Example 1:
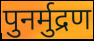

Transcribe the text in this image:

पुनर्मुद्रण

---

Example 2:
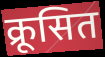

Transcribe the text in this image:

क्रूसित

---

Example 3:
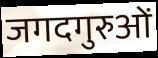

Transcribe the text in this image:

जगदगुरुओं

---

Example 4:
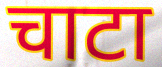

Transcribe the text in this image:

चाटा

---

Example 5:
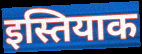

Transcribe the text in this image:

इस्तियाक